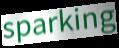
sparking